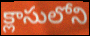
క్లాసులోని